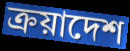
ক্রয়াদেশ